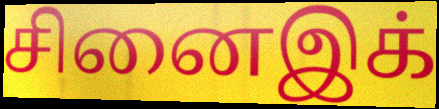
சினைஇக்